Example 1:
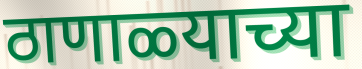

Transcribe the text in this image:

ठाणाळ्याच्या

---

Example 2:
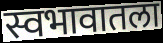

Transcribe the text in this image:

स्वभावातला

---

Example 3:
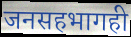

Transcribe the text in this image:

जनसहभागही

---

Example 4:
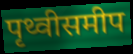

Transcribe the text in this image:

पृथ्वीसमीप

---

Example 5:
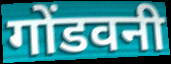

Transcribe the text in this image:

गोंडवनी